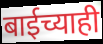
बाईच्याही